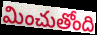
మించుతోంది